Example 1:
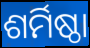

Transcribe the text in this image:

ଶର୍ମିଷ୍ଠା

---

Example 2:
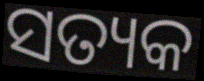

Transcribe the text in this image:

ସତ୍ୟକ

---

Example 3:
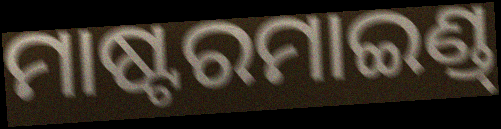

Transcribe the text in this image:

ମାଷ୍ଟରମାଇଣ୍ଡ୍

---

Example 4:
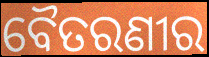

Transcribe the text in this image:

ବୈତରଣୀର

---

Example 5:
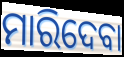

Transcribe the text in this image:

ମାରିଦେବା